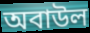
অবাউল